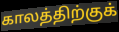
காலத்திற்குக்